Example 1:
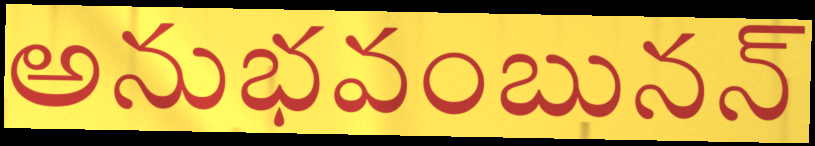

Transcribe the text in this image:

అనుభవంబునన్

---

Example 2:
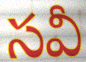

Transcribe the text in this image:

సవీ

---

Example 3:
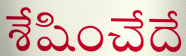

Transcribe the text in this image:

శేషించేదే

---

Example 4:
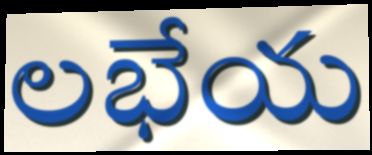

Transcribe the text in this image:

లభేయ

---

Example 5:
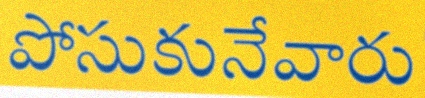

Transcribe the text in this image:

పోసుకునేవారు